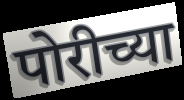
पोरीच्या